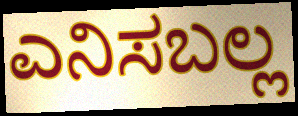
ಎನಿಸಬಲ್ಲ